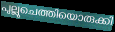
പുല്ലുചെത്തിയൊരുക്കി